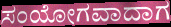
ಸಂಯೋಗವಾದಾಗ